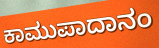
ಕಾಮುಪಾದಾನಂ